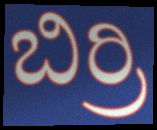
ಬಿರ್ರಿ